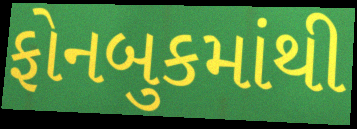
ફોનબુકમાંથી